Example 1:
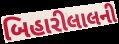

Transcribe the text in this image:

બિહારીલાલની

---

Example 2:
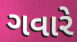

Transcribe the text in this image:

ગવારે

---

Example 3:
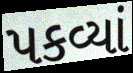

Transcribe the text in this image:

પકવ્યાં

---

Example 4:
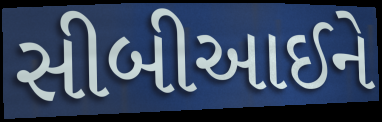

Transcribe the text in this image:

સીબીઆઈને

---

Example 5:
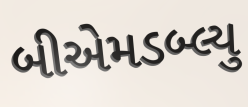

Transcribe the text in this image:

બીએમડબ્લ્યુ